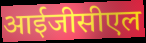
आईजीसीएल